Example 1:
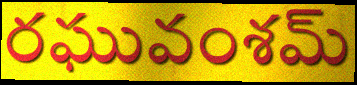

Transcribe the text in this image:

రఘువంశమ్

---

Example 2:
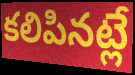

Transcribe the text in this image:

కలిపినట్లే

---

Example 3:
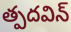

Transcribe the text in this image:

త్పదవిన్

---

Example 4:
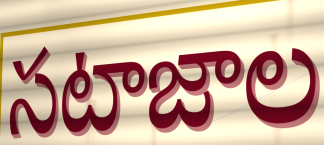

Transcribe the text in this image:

సటాజాల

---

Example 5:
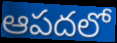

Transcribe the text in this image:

ఆపదలో